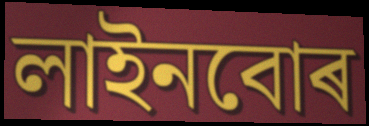
লাইনবোৰ